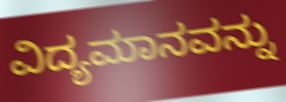
ವಿದ್ಯಮಾನವನ್ನು